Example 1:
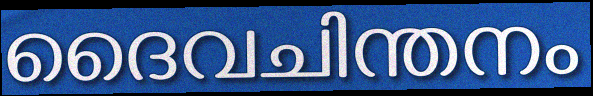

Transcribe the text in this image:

ദൈവചിന്തനം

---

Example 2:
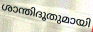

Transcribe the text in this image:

ശാന്തിദൂതുമായി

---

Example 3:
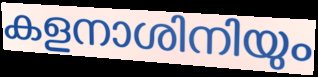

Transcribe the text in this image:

കളനാശിനിയും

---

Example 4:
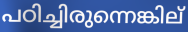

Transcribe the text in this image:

പഠിച്ചിരുന്നെങ്കില്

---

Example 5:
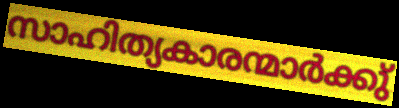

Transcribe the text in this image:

സാഹിത്യകാരന്മാർക്കു്